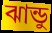
ঝান্ডু